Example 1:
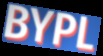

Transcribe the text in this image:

BYPL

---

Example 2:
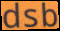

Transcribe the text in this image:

dsb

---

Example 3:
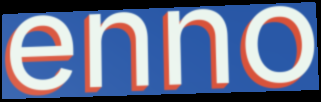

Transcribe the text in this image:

enno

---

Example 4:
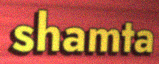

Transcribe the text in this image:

shamta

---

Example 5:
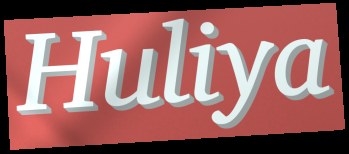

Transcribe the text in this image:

Huliya